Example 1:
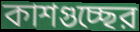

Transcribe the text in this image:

কাশগুচ্ছের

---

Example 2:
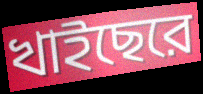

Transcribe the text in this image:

খাইছেরে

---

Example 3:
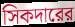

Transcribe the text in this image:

সিকদারের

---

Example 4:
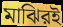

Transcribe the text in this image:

মাঝিরই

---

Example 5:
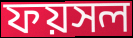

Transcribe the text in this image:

ফয়সল